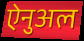
ऐनुअल